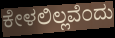
ಕೇಳಲಿಲ್ಲವೆಂದು